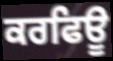
ਕਰਫਿਊ